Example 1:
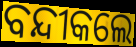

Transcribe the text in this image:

ବନ୍ଦୀକଲେ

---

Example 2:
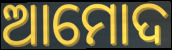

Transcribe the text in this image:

ଆମୋଦ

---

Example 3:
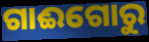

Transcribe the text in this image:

ଗାଈଗୋରୁ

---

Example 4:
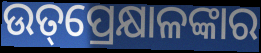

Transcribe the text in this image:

ଉତ୍‌ପ୍ରେକ୍ଷାଳଙ୍କାର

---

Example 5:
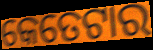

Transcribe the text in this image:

କେତେଟାର